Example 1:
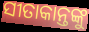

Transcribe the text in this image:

ସୀତାକାନ୍ତଙ୍କୁ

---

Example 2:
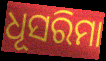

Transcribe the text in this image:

ଧୂସରିମା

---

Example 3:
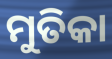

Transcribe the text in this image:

ମୁତିକା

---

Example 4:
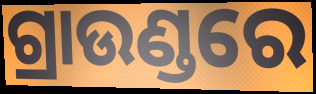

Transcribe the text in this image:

ଗ୍ରାଉଣ୍ଡରେ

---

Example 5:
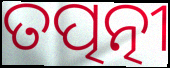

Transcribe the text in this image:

ତତ୍ପତ୍ନୀ